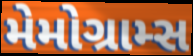
મેમોગ્રામ્સ